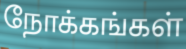
நோக்கங்கள்